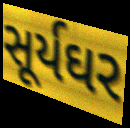
સૂર્યઘર